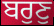
ਬਰੁਣੁ